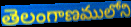
తెలంగాణములోని